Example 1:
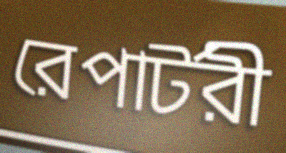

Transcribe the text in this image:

রেপার্টরী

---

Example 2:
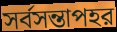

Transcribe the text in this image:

সর্বসন্তাপহর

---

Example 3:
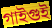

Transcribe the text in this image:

গাইগুই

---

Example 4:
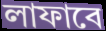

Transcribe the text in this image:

লাফাবে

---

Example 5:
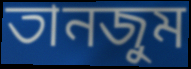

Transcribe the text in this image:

তানজুম